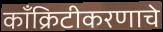
काँक्रिटीकरणाचे